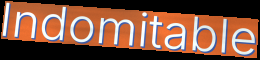
Indomitable